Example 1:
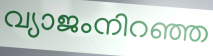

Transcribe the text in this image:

വ്യാജംനിറഞ്ഞ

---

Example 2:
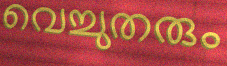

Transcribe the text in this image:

വെച്ചുതരും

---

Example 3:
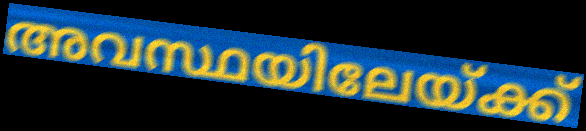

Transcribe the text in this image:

അവസ്ഥയിലേയ്ക്ക്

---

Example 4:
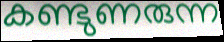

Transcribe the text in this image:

കണ്ടുണരുന്ന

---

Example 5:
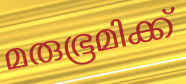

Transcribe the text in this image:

മരുഭൂമിക്ക്